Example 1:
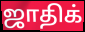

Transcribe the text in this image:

ஜாதிக்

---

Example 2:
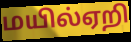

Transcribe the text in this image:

மயில்ஏறி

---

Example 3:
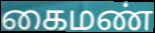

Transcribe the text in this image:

கைமண்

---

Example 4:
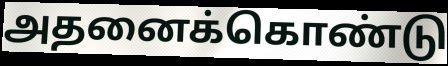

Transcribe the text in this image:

அதனைக்கொண்டு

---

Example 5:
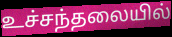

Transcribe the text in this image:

உச்சந்தலையில்